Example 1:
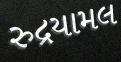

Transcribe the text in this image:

રુદ્રયામલ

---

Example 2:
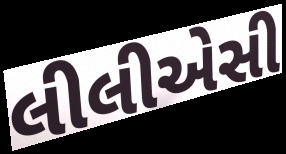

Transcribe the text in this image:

લીલીએસી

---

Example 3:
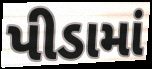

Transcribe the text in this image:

પીડામાં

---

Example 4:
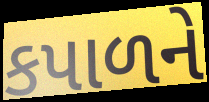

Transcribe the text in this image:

કપાળને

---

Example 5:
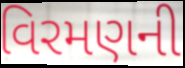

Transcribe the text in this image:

વિરમણની